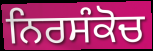
ਨਿਰਸੰਕੋਚ